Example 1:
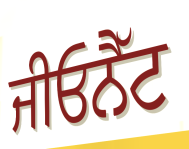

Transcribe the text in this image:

ਜੀਓਨੈੱਟ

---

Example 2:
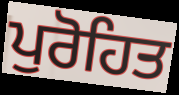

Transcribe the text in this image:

ਪੁਰੋਹਿਤ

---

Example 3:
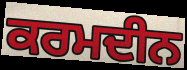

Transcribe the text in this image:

ਕਰਮਦੀਨ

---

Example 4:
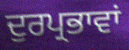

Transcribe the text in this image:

ਦੁਰਪ੍ਰਭਾਵਾਂ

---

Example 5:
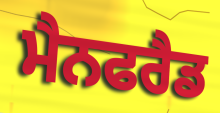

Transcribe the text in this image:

ਮੈਨਫਰੈਡ